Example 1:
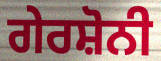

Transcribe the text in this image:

ਗੇਰਸ਼ੋਨੀ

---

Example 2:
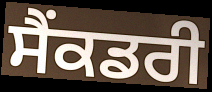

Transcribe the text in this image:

ਸੈਂਕਡਰੀ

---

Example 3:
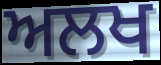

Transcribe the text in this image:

ਅਲਖ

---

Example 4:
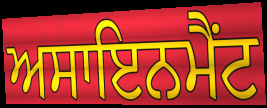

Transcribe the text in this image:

ਅਸਾਇਨਮੈਂਟ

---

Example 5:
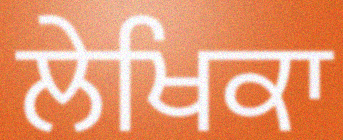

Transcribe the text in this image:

ਲੇਖਿਕਾ